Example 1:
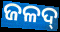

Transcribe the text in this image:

ଜଳଦ୍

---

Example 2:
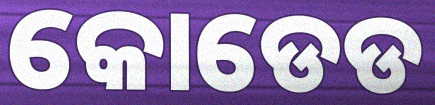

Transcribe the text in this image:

କୋଡେଡ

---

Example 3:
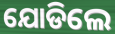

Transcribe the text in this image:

ଯୋଡିଲେ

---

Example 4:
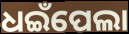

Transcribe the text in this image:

ଧଇଁପେଲା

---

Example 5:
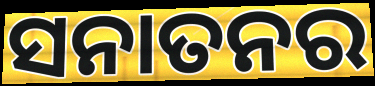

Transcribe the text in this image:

ସନାତନର